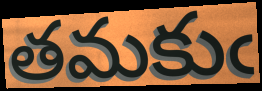
తమకుఁ